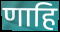
णाहि